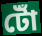
টোঁ